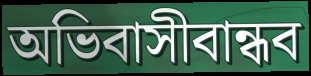
অভিবাসীবান্ধব